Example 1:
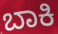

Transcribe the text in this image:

ಬಾಕಿ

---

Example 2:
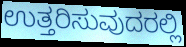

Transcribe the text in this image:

ಉತ್ತರಿಸುವುದರಲ್ಲಿ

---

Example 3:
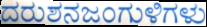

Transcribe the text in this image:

ದರುಶನಜಂಗುಳಿಗಳು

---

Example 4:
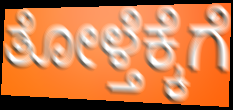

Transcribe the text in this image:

ತೋಳ್ತೆಕ್ಕೆಗೆ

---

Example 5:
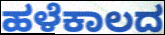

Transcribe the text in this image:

ಹಳೆಕಾಲದ